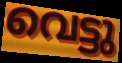
വെട്ടു